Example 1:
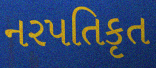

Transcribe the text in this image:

નરપતિકૃત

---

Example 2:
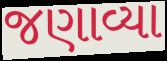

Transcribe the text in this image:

જણાવ્યા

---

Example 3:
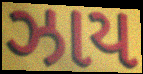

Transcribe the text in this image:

ઝાય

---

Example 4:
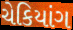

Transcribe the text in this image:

ચેકિયાંગ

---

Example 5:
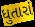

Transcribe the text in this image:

ધુતારાં